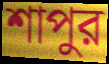
শাপুর